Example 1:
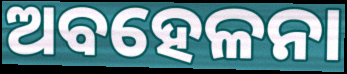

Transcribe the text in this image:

ଅବହେଳନା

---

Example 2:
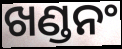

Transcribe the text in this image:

ଖଣ୍ଡନଂ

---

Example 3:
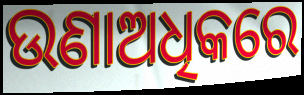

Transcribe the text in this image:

ଉଣାଅଧିକରେ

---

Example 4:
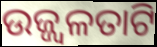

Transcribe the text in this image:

ଉଜ୍ଜ୍ୱଳତାଟି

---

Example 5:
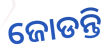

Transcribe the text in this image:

ଜୋଡନ୍ତି